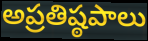
అప్రతిష్ఠపాలు